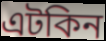
এটকিন